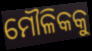
ମୌଳିକକୁ